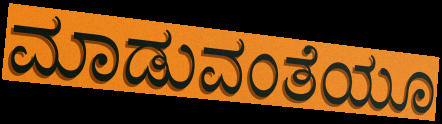
ಮಾಡುವಂತೆಯೂ